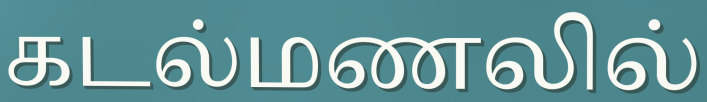
கடல்மணலில்